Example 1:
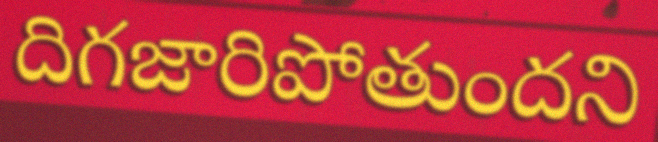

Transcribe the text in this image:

దిగజారిపోతుందని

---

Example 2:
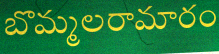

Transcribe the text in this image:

బొమ్మలరామారం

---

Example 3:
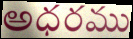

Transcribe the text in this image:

అధరము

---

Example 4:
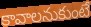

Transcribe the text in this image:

కావాలనుకుంటే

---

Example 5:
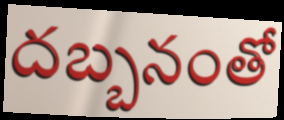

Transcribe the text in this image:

దబ్బనంతో